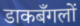
डाकबँगलों